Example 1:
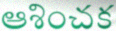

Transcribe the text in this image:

ఆశించక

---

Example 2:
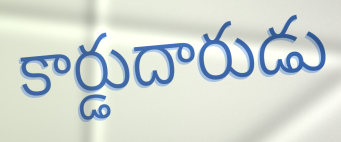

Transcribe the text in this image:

కార్డుదారుడు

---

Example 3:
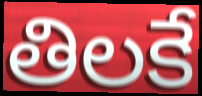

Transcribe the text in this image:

తిలకే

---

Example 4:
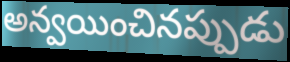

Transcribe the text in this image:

అన్వయించినప్పుడు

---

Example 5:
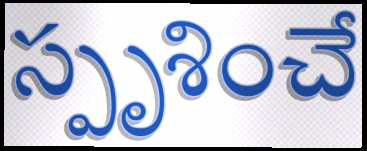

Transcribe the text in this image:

స్పృశించే